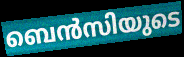
ബെൻസിയുടെ